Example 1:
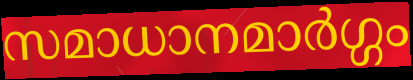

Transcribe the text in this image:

സമാധാനമാർഗ്ഗം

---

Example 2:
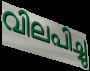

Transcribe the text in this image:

വിലപിച്ചു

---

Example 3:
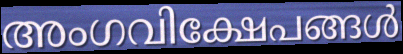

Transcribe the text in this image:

അംഗവിക്ഷേപങ്ങൾ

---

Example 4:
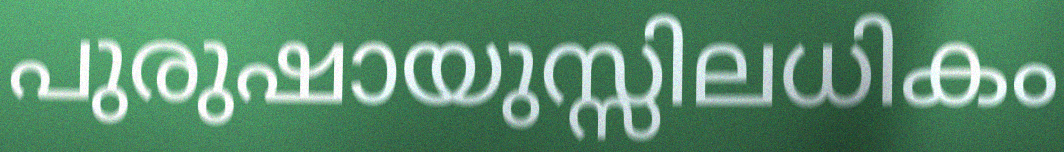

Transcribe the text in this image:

പുരുഷായുസ്സിലധികം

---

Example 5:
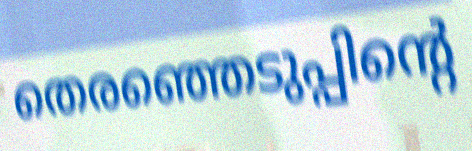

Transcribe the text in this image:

തെരഞ്ഞെടുപ്പിന്റെ